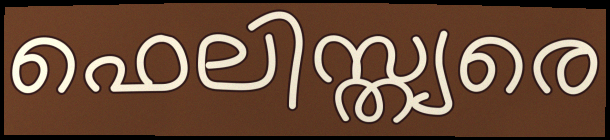
ഫെലിസ്ത്യരെ